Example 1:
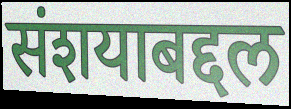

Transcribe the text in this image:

संशयाबद्दल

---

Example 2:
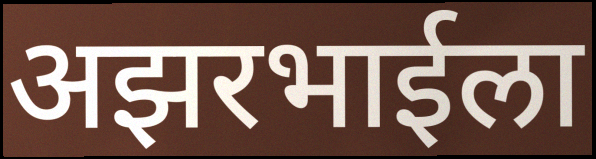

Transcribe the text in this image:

अझरभाईला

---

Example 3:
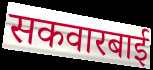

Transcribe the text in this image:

सकवारबाई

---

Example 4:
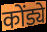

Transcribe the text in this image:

कोंड्ये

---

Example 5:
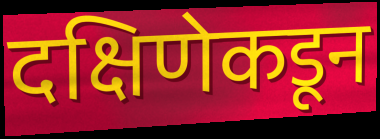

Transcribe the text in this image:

दक्षिणेकडून